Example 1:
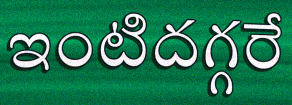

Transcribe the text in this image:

ఇంటిదగ్గరే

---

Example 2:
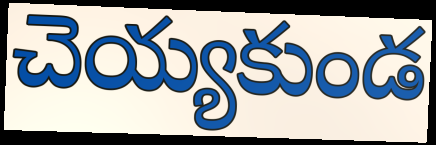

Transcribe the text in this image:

చెయ్యకుండ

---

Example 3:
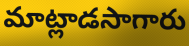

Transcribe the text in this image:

మాట్లాడసాగారు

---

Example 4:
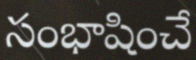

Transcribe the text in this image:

సంభాషించే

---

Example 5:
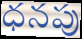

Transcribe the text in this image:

ధనపు